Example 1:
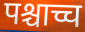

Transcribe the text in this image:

पश्चाच्च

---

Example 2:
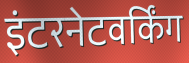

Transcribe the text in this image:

इंटरनेटवर्किंग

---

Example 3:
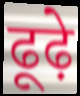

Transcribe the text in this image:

ढूढ़े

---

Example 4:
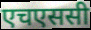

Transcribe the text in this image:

एचएससी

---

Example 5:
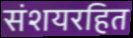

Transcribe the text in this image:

संशयरहित